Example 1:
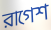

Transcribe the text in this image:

রাগেশ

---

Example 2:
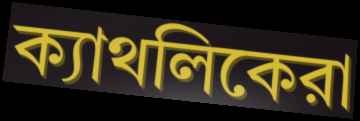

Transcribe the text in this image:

ক্যাথলিকেরা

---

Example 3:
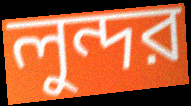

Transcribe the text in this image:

লুন্দর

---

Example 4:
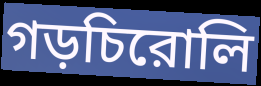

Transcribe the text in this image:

গড়চিরোলি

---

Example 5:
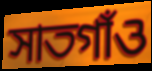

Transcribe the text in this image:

সাতগাঁও